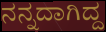
ನನ್ನದಾಗಿದ್ದ